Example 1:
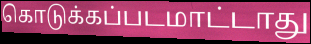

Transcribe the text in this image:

கொடுக்கப்படமாட்டாது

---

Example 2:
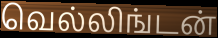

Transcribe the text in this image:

வெல்லிங்டன்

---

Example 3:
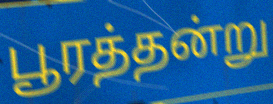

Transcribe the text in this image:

பூரத்தன்று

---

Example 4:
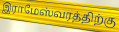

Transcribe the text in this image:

இராமேஸ்வரத்திற்கு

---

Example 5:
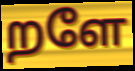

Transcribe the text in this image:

றளே